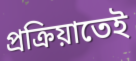
প্রক্রিয়াতেই